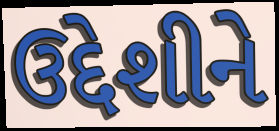
ઉદ્દેશીને